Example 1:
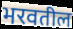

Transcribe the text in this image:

भरवतील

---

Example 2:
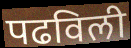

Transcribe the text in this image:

पढविली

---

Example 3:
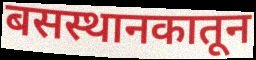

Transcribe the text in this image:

बसस्थानकातून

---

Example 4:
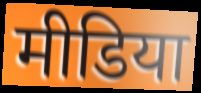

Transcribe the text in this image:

मीडिया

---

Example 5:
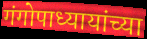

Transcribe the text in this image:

गंगोपाध्यायांच्या